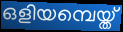
ഒളിയമ്പെയ്ത്